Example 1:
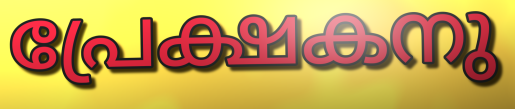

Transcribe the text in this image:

പ്രേക്ഷകനു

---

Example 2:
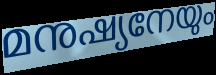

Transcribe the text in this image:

മനുഷ്യനേയും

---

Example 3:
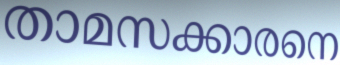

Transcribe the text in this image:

താമസക്കാരനെ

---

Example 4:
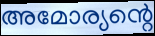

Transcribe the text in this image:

അമോര്യന്റെ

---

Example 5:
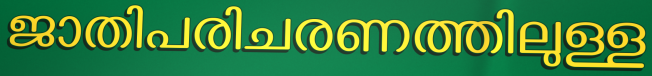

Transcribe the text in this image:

ജാതിപരിചരണത്തിലുള്ള